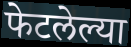
फेटलेल्या